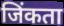
जिंकता